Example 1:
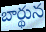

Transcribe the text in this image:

బార్థున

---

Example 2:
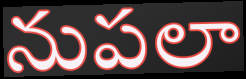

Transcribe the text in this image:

నుపలా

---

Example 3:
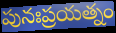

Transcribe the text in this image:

పునఃప్రయత్నం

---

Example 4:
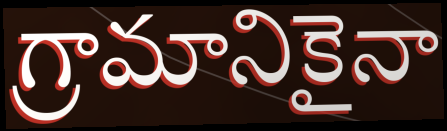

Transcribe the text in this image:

గ్రామానికైనా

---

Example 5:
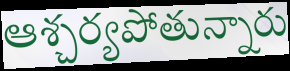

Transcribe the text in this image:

ఆశ్చర్యపోతున్నారు